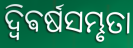
ଦ୍ଵିଵର୍ଷସମ୍ଭୃତା